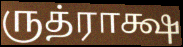
ருத்ராக்ஷ